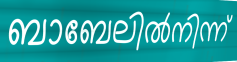
ബാബേലിൽനിന്ന്